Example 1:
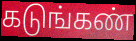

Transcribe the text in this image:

கடுங்கண்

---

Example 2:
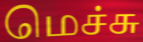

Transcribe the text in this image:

மெச்சு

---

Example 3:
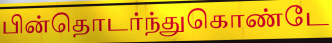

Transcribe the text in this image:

பின்தொடர்ந்துகொண்டே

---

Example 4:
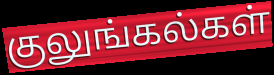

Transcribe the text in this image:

குலுங்கல்கள்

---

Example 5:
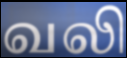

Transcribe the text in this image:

வலி